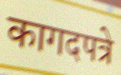
कागदपत्रे